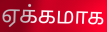
ஏக்கமாக